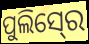
ପୁଲିସ୍‍ରେ